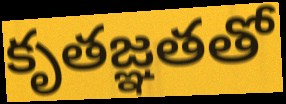
కృతజ్ఞతతో